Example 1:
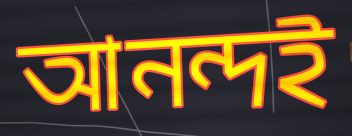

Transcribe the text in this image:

আনন্দই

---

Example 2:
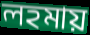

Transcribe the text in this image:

লহমায়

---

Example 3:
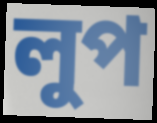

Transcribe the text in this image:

লুপ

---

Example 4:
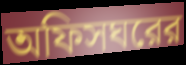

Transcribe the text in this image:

অফিসঘরের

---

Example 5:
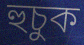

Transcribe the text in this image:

হুচুক